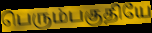
பெரும்பகுதியே